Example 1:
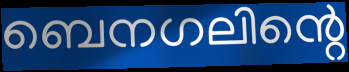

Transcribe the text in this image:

ബെനഗലിന്റെ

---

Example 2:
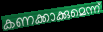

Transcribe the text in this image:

കണക്കാക്കുമെന്ന്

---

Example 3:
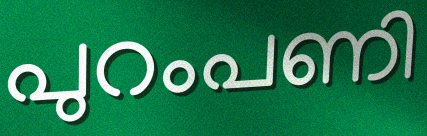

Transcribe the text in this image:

പുറംപണി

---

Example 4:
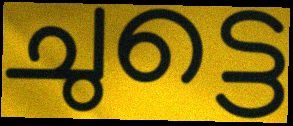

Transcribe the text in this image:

ചുട്ടെ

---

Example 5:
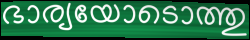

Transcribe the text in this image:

ഭാര്യയോടൊത്തു